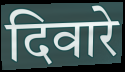
दिवारे